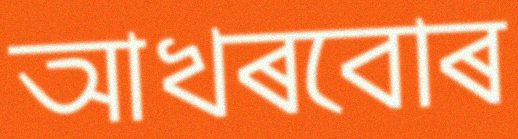
আখৰবোৰ